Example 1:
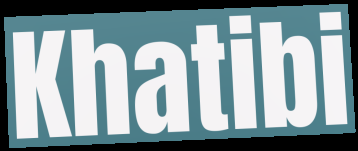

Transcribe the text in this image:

Khatibi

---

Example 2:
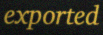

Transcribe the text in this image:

exported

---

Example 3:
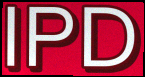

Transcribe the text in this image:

IPD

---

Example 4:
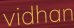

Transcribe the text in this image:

vidhan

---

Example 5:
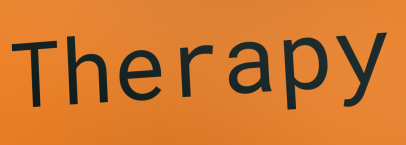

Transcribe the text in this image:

Therapy